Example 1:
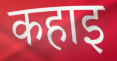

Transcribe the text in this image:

कहाइ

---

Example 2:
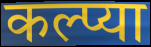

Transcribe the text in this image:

कल्प्या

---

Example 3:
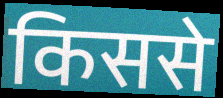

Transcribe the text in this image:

किससे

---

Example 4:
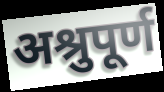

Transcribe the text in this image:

अश्रुपूर्ण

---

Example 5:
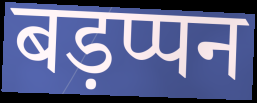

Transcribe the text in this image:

बड़प्पन